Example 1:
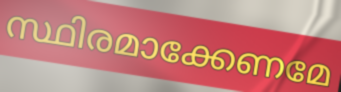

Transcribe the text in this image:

സ്ഥിരമാക്കേണമേ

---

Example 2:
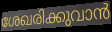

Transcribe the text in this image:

ശേഖരിക്കുവാൻ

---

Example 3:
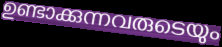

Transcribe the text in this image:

ഉണ്ടാക്കുന്നവരുടെയും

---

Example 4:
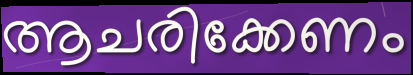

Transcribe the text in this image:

ആചരിക്കേണം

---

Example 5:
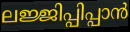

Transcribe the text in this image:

ലജ്ജിപ്പിപ്പാൻ